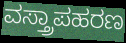
ವಸ್ತ್ರಾಪಹರಣ